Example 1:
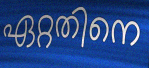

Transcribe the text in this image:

ഏറ്റതിനെ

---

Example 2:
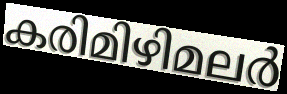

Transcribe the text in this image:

കരിമിഴിമലർ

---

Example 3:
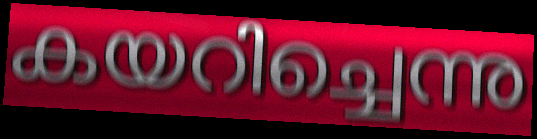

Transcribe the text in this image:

കയറിച്ചെന്നു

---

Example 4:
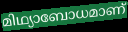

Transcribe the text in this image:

മിഥ്യാബോധമാണ്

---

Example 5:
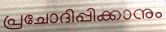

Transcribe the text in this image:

പ്രചോദിപ്പിക്കാനും